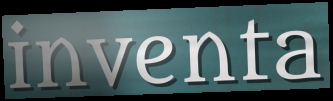
inventa